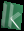
Ik